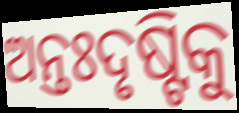
ଅନ୍ତଃଦୃଷ୍ଟିକୁ